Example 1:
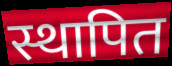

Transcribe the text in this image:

स्थापित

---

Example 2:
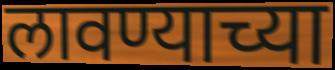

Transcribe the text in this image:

लावण्याच्या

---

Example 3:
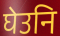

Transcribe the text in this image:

घेउनि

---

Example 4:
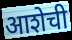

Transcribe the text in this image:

आशेची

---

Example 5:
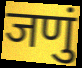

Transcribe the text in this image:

जणुं